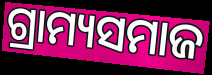
ଗ୍ରାମ୍ୟସମାଜ